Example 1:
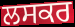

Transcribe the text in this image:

ਲਸਕਰ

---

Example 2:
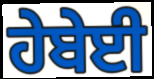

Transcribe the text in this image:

ਹੇਬੇਈ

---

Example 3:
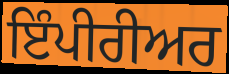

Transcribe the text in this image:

ਇੰਪੀਰੀਅਰ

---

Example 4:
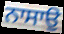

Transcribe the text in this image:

ਨਾਸਾਉ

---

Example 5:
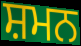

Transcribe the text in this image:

ਸ਼ਮਨ